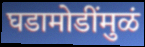
घडामोडींमुळं